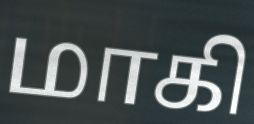
மாகி